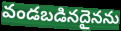
వండబడినదైనను